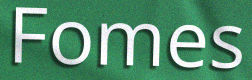
Fomes